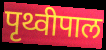
पृथ्वीपाल